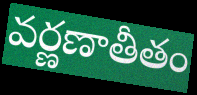
వర్ణణాతీతం